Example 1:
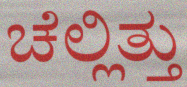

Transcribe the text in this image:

ಚೆಲ್ಲಿತ್ತು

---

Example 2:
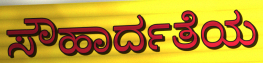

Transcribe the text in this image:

ಸೌಹಾರ್ದತೆಯ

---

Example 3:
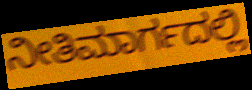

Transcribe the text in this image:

ನೀತಿಮಾರ್ಗದಲ್ಲಿ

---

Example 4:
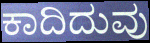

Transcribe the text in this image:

ಕಾದಿದುವು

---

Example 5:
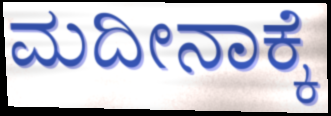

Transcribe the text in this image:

ಮದೀನಾಕ್ಕೆ